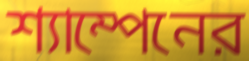
শ্যাম্পেনের